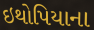
ઇથોપિયાના